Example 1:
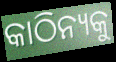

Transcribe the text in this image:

କାଠିନ୍ୟକୁ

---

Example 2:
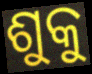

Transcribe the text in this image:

ଶୁକୁ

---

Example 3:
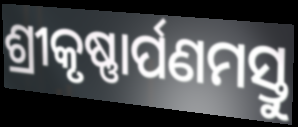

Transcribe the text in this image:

ଶ୍ରୀକୃଷ୍ଣାର୍ପଣମସ୍ତୁ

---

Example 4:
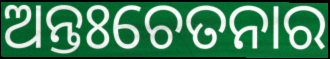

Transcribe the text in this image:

ଅନ୍ତଃଚେତନାର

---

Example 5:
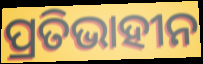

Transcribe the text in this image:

ପ୍ରତିଭାହୀନ